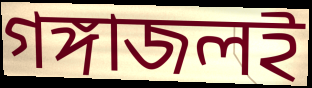
গঙ্গাজলই